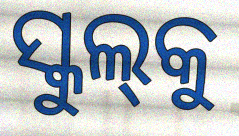
ସ୍କୁଲ୍‌କୁ